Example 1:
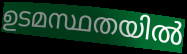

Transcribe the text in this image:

ഉടമസ്ഥതയിൽ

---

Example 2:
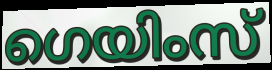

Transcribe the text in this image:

ഗെയിംസ്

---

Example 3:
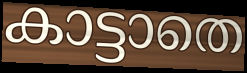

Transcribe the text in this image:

കാട്ടാതെ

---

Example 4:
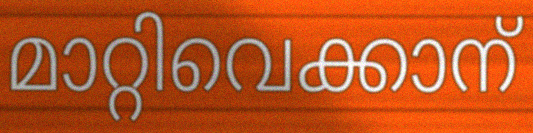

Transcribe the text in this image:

മാറ്റിവെക്കാന്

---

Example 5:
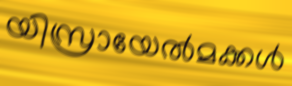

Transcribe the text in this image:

യിസ്രായേൽമക്കൾ